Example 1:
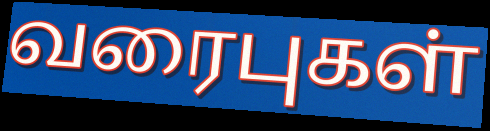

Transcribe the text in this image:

வரைபுகள்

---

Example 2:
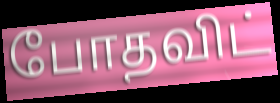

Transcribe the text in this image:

போதவிட்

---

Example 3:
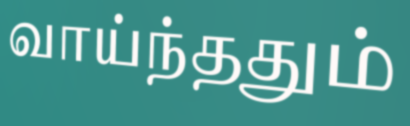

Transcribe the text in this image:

வாய்ந்ததும்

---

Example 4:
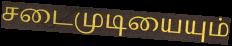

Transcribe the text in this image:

சடைமுடியையும்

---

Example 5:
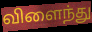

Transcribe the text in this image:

விளைந்து